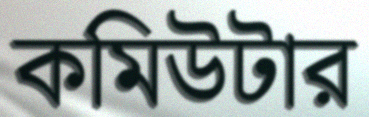
কমিউটার